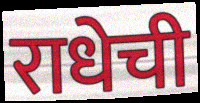
राधेची